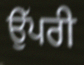
ਉੱਪਰੀ